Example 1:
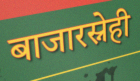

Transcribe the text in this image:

बाजारस्नेही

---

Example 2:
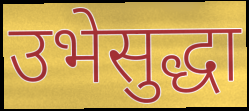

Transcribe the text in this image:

उभेसुद्धा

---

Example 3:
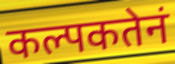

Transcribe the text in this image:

कल्पकतेनं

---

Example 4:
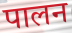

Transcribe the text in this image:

पालन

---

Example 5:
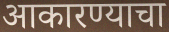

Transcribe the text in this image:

आकारण्याचा